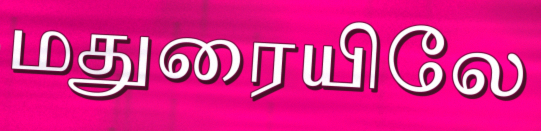
மதுரையிலே